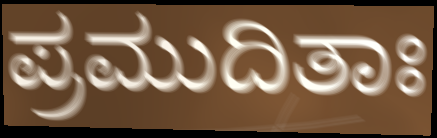
ಪ್ರಮುದಿತಾಃ